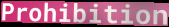
Prohibition